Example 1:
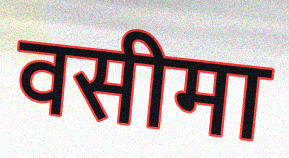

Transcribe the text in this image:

वसीमा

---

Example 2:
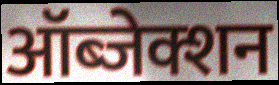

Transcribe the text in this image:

ऑब्‍जेक्‍शन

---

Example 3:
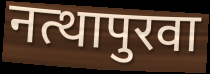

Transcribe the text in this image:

नत्थापुरवा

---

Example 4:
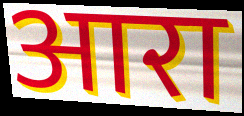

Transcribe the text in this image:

आरा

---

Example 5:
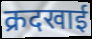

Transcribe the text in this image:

क्रदखाई